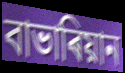
বাভাৰিয়ান